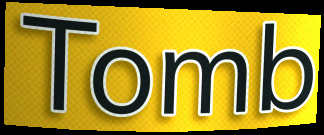
Tomb